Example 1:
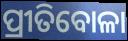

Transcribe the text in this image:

ପ୍ରୀତିବୋଳା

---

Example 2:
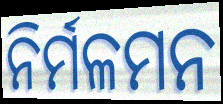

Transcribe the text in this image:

ନିର୍ମଳମନ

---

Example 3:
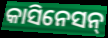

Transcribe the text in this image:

କାସିନେସନ୍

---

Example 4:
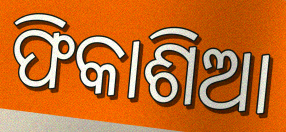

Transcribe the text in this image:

ଫିକାଶିଆ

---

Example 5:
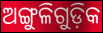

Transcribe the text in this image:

ଅଙ୍ଗୁଳିଗୁଡ଼ିକ